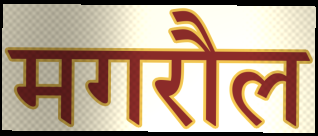
मगरौल